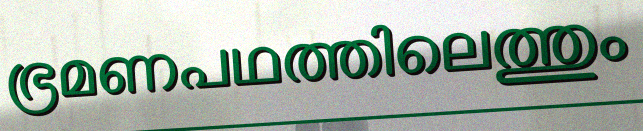
ഭ്രമണപഥത്തിലെത്തും